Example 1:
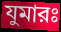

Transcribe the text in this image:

যুমারঃ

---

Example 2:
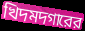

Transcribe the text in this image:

খিদমদগারের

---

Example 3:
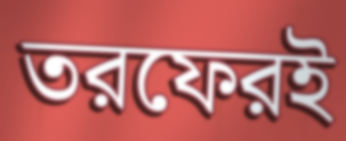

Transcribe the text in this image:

তরফেরই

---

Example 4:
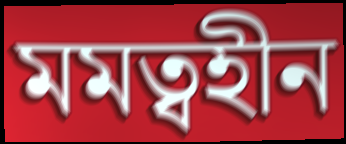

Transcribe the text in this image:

মমত্বহীন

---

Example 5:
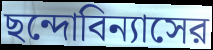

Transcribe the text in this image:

ছন্দোবিন্যাসের